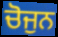
ਚੋਜੁਨ